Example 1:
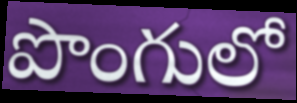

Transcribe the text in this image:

పొంగులో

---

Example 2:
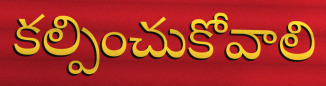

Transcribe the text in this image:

కల్పించుకోవాలి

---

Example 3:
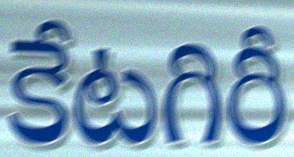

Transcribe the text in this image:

కేటగిరీ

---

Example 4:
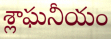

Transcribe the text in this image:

శ్లాఘనీయం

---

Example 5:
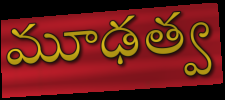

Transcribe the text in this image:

మూఢత్వ